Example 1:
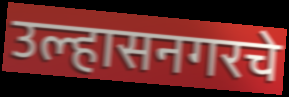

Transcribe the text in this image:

उल्हासनगरचे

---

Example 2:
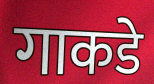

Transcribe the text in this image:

गाकडे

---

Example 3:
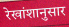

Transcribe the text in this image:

रेखांशानुसार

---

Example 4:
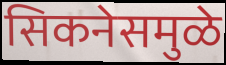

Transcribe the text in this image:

सिकनेसमुळे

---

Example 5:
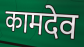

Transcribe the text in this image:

कामदेव